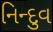
નિન્દુવ